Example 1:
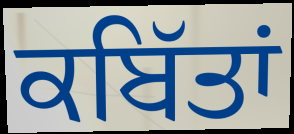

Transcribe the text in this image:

ਕਬਿੱਤਾਂ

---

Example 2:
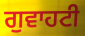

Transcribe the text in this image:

ਗੁਵਾਹਟੀ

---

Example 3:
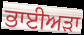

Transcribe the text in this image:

ਭਾਈਅੜਾ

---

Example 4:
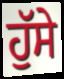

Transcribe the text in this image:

ਹੁੱਸੇ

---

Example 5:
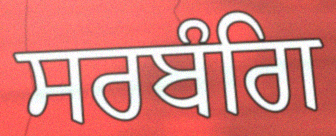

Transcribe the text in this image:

ਸਰਬੰਗਿ